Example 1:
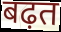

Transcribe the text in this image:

बढ़त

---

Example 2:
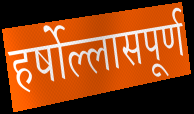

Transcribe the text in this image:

हर्षोल्लासपूर्ण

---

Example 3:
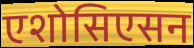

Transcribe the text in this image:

एशोसिएसन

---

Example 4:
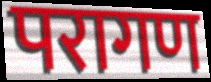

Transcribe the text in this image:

परागण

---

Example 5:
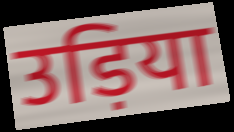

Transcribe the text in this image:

उड़िया